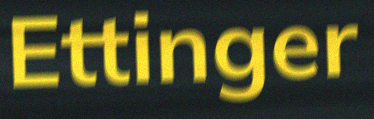
Ettinger